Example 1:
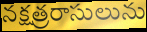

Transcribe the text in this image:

నక్షత్రరాసులును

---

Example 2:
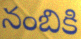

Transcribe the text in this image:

నంబికి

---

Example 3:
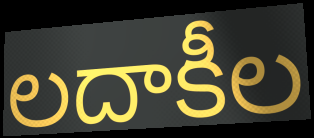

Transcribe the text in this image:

లదాకీల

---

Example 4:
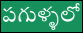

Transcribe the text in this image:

పగుళ్ళలో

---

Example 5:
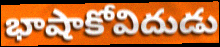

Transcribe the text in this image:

భాషాకోవిదుడు